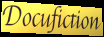
Docufiction